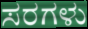
ಸರಗಳು